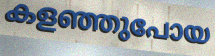
കളഞ്ഞുപോയ